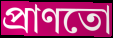
প্রাণতো